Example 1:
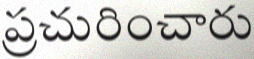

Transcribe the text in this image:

ప్రచురించారు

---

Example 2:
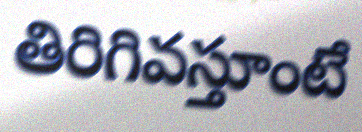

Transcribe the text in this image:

తిరిగివస్తూంటే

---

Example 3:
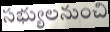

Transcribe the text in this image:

సభ్యులనుంచి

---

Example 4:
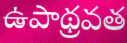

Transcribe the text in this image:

ఉపాథ్రవత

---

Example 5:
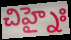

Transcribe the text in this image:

చిహ్నైః